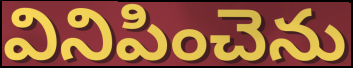
వినిపించెను